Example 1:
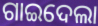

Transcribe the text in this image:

ଗାଇଦେଲା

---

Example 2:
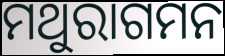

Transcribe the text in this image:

ମଥୁରାଗମନ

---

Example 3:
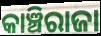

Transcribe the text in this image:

କାଞ୍ଚିରାଜା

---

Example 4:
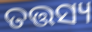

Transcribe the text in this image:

ତତ୍ତସ୍ୟ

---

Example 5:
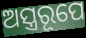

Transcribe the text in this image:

ଅସ୍ତ୍ରରୂପେ